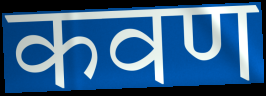
कवण